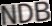
NDB